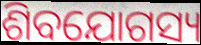
ଶିବଯୋଗସ୍ୟ